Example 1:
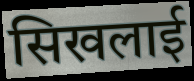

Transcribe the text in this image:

सिखलाई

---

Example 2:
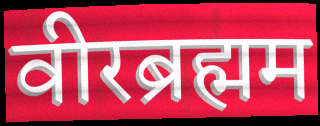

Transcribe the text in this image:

वीरब्रह्मम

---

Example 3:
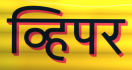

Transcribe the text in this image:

व्हिपर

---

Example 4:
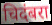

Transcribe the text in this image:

चिदंबरा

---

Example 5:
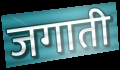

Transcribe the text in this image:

जगाती